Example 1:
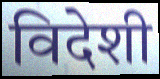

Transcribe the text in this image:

विदेशी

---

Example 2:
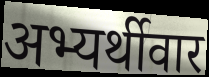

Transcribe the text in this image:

अभ्यर्थीवार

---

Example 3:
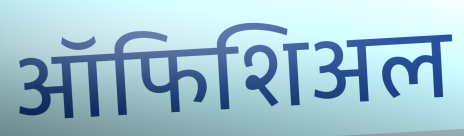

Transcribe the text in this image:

ऑफिशिअल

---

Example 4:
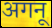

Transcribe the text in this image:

अगनू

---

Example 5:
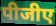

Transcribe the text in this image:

पीजीए